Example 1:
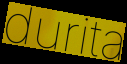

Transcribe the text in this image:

durita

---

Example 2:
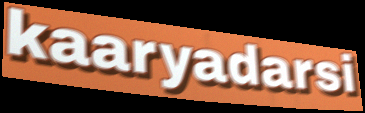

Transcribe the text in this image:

kaaryadarsi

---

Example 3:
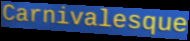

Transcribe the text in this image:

Carnivalesque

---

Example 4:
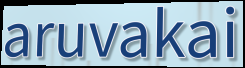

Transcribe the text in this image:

aruvakai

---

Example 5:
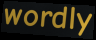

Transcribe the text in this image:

wordly